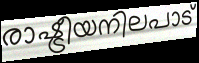
രാഷ്ട്രീയനിലപാട്